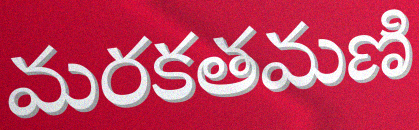
మరకతమణి